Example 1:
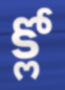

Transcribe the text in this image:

క్లో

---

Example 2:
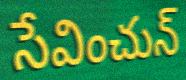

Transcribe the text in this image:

సేవించున్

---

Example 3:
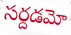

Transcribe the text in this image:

సర్దడమో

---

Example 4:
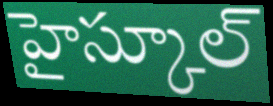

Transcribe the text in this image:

హైస్కూల్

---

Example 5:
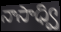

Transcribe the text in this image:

నాసాధ్వి